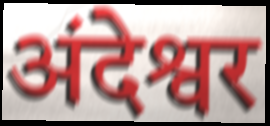
अंदेश्वर